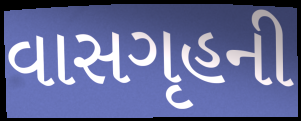
વાસગૃહની